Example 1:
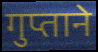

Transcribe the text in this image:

गुप्ताने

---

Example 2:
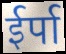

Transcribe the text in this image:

ईर्पा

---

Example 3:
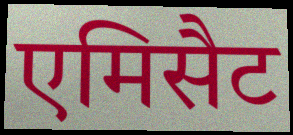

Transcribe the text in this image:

एमिसैट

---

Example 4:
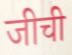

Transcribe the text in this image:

जीची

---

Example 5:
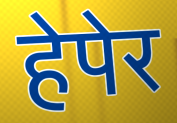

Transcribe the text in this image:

हेपेर